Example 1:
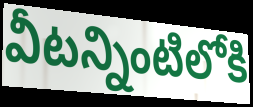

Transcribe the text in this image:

వీటన్నింటిలోకి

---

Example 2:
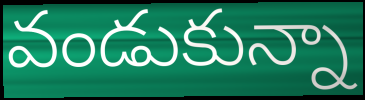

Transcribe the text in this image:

వండుకున్నా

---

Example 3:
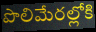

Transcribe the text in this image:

పొలిమేరల్లోకి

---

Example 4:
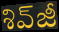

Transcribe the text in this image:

శివ్‌జీ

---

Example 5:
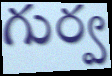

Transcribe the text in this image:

గుర్వ